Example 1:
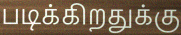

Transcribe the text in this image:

படிக்கிறதுக்கு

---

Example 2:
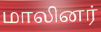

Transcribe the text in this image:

மாலினர்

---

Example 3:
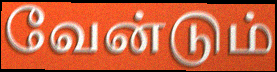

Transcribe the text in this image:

வேன்டும்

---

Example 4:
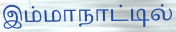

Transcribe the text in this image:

இம்மாநாட்டில்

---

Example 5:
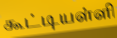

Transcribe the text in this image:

கூட்டியள்ளி